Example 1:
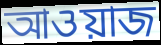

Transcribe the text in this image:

আওয়াজ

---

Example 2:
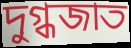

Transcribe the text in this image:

দুগ্ধজাত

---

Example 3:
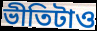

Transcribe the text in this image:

ভীতিটাও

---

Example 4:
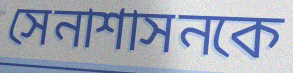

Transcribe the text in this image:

সেনাশাসনকে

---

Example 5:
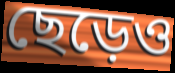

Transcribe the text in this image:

ছেড়েও